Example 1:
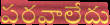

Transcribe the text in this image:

పరవాలేదు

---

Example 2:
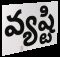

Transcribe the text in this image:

వ్యష్టి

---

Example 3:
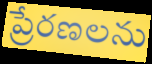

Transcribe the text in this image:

ప్రేరణలను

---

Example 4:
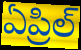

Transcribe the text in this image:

ఏప్రిల్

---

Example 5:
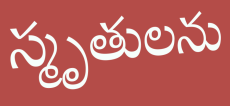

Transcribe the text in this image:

స్మృతులను